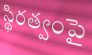
స్థిరత్వంపై